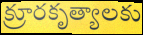
క్రూరకృత్యాలకు